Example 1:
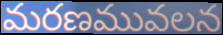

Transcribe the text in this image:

మరణమువలన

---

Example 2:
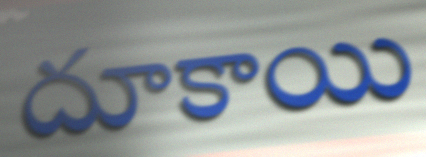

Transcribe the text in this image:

దూకాయి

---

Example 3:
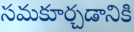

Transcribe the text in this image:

సమకూర్చడానికి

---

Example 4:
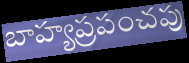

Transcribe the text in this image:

బాహ్యప్రపంచపు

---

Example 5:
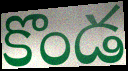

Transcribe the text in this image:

కొండ